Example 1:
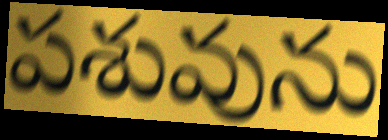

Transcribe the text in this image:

పశువును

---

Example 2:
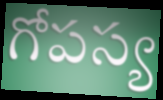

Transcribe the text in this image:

గోపస్య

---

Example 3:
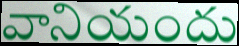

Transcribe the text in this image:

వానియందు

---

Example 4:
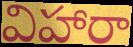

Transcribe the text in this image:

విహారా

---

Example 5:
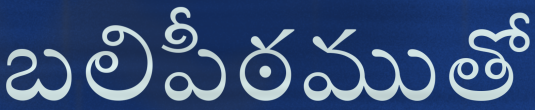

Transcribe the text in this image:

బలిపీఠముతో